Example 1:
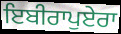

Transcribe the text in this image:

ਇਬੀਰਾਪੁਏਰਾ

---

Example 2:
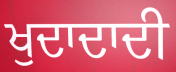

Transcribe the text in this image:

ਖੁਦਾਦਾਦੀ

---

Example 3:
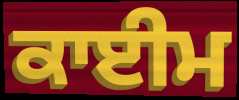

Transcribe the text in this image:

ਕਾਈਮ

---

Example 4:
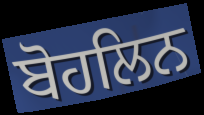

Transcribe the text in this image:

ਬੋਹਲਿਨ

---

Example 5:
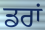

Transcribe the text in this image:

ਡਰਾਂ